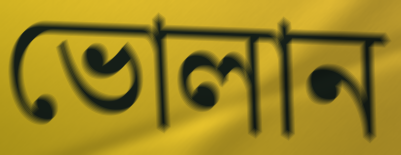
ভোলান